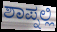
ಶಾಪ್ನಲ್ಲಿ